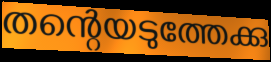
തന്റെയടുത്തേക്കു